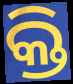
କ୍ତି